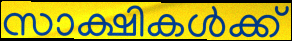
സാക്ഷികൾക്ക്